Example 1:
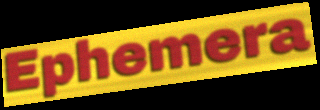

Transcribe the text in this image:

Ephemera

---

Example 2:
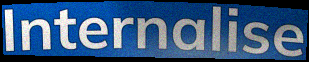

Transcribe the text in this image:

Internalise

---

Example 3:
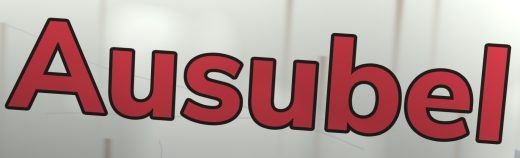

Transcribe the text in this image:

Ausubel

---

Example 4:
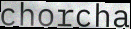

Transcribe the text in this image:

chorcha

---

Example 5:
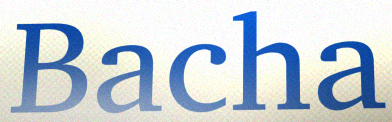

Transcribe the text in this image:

Bacha